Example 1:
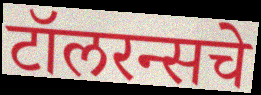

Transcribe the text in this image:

टॉलरन्सचे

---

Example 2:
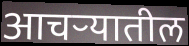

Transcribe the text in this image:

आचऱ्यातील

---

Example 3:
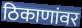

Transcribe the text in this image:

ठिकाणांवर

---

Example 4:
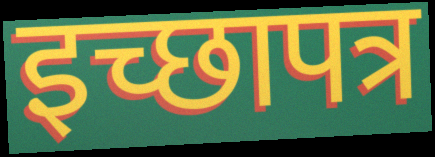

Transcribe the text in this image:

इच्छापत्र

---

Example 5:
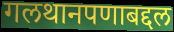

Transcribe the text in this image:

गलथानपणाबद्दल